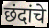
छंदांचे